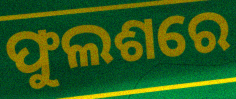
ଫୁଲଶରେ